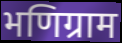
भणिग्राम